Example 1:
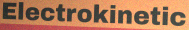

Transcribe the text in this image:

Electrokinetic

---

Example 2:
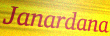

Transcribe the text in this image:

Janardana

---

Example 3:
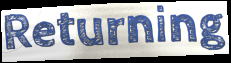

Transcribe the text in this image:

Returning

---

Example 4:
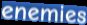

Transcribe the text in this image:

enemies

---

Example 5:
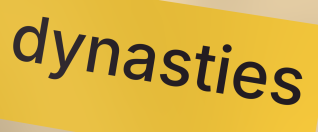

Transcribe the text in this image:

dynasties